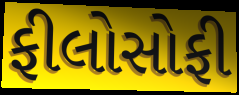
ફીલોસોફી